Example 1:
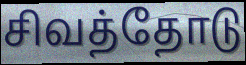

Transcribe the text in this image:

சிவத்தோடு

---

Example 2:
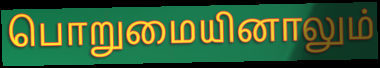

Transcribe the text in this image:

பொறுமையினாலும்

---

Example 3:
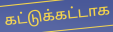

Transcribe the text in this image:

கட்டுக்கட்டாக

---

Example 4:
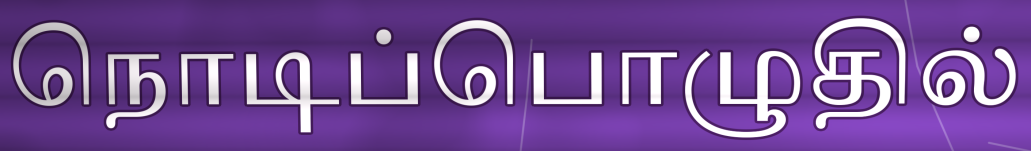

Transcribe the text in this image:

நொடிப்பொழுதில்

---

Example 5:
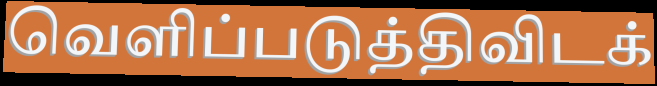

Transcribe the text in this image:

வெளிப்படுத்திவிடக்